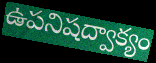
ఉపనిషద్వాక్యం